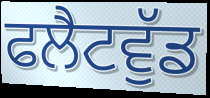
ਫਲੈਟਵੁੱਡ